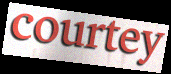
courtey